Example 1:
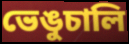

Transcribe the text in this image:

ভেঙুচালি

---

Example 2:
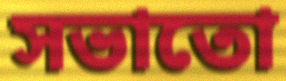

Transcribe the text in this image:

সভাতো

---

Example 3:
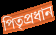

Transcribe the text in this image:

পিতৃপ্ৰধান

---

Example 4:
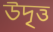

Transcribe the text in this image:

উদৃত্ত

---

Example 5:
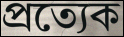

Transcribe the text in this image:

প্ৰত্য়েক